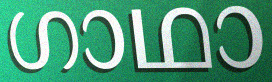
ഗാഥാ